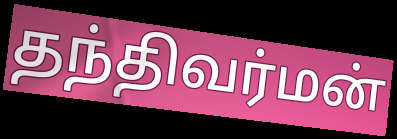
தந்திவர்மன்